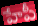
హేపీ